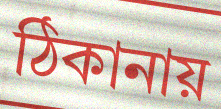
ঠিকানায়